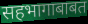
सहभागाबाबत